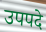
उपपदे